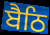
ਬੈਠਿ